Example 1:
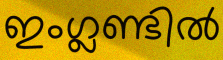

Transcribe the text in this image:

ഇംഗ്ലണ്ടിൽ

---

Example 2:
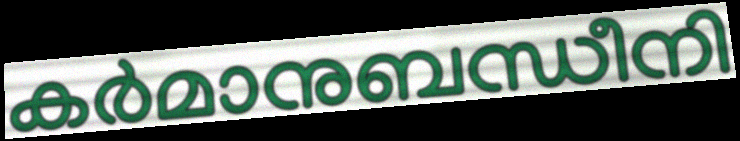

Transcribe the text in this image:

കർമാനുബന്ധീനി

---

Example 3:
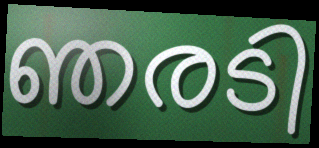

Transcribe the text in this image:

ഞരടി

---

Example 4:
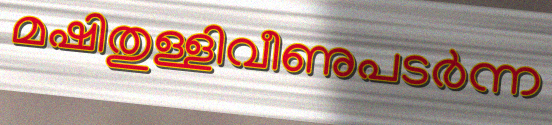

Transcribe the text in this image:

മഷിതുള്ളിവീണുപടർന്ന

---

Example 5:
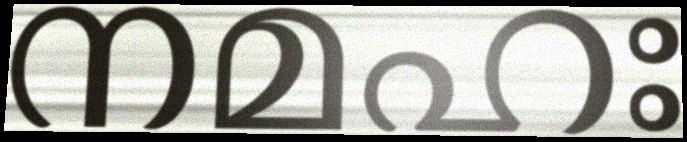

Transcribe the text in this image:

നമഹഃ